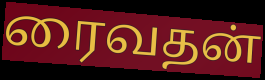
ரைவதன்